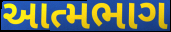
આત્મભાગ